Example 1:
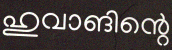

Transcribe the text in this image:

ഹുവാങിന്റെ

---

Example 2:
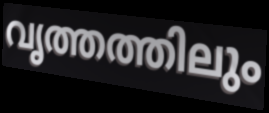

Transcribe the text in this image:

വൃത്തത്തിലും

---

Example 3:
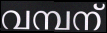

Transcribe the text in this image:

വമ്പന്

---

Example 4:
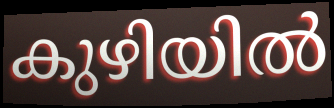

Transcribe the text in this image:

കുഴിയിൽ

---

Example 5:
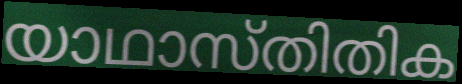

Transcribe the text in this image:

യാഥാസ്തിതിക